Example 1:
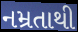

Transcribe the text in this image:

નમ્રતાથી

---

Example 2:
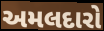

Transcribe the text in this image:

અમલદારો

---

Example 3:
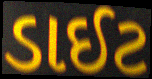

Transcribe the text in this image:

ડાઈટ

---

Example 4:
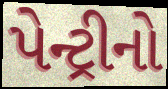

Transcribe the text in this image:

પેન્ટ્રીનો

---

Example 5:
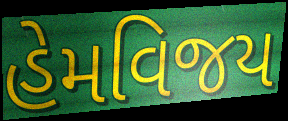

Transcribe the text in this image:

હેમવિજય